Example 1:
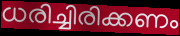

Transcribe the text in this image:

ധരിച്ചിരിക്കണം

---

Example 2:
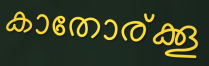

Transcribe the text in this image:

കാതോര്ക്കൂ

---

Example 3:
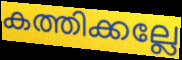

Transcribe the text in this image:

കത്തിക്കല്ലേ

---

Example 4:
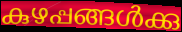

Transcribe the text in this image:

കുഴപ്പങ്ങൾക്കു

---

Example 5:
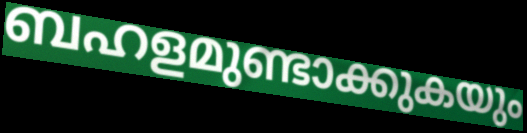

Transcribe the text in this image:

ബഹളമുണ്ടാക്കുകയും